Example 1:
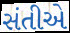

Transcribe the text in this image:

સંતીએ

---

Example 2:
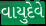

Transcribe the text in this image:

વાયુદેવે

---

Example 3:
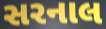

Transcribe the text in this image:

સરનાલ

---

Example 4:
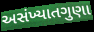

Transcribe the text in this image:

અસંખ્યાતગુણા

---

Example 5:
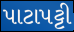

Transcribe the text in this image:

પાટાપટ્ટી